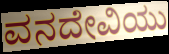
ವನದೇವಿಯು